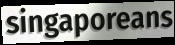
singaporeans